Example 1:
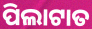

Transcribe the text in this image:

ପିଲାଟାତ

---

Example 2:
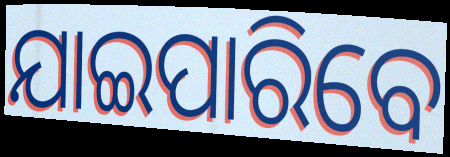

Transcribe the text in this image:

ଯାଇପାରିବେ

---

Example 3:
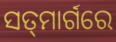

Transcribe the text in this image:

ସତ୍‌ମାର୍ଗରେ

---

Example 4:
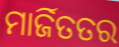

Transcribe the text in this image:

ମାର୍ଜିତତର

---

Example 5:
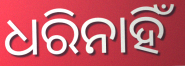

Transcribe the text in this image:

ଧରିନାହିଁ